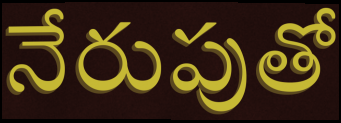
నేరుపుతో